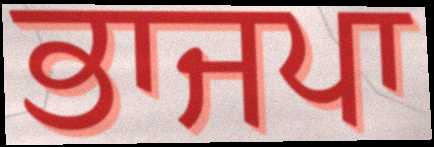
ਭਾਜਪਾ